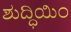
ಶುದ್ಧಿಯಿಂ